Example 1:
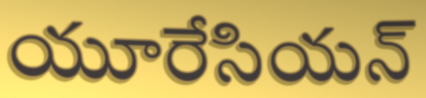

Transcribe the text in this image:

యూరేసియన్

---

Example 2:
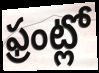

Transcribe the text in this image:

ఫ్రంట్లో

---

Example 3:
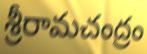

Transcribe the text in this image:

శ్రీరామచంద్రం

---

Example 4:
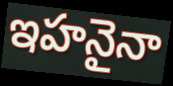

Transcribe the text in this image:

ఇహనైనా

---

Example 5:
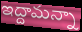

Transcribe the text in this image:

ఇద్దామన్నా